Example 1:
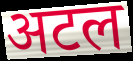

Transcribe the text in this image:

अटल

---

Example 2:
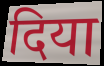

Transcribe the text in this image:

दिया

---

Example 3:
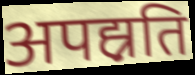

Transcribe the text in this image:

अपह्नति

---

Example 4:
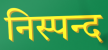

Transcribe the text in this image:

निस्पन्द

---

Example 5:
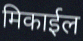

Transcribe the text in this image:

मिकाईल